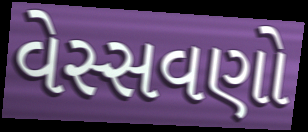
વેસ્સવણો